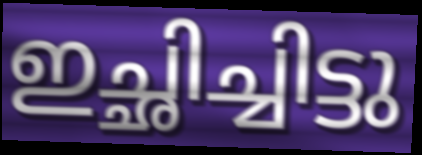
ഇച്ഛിച്ചിട്ടു